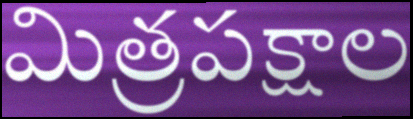
మిత్రపక్షాల